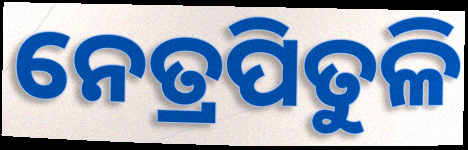
ନେତ୍ରପିତୁଳି